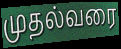
முதல்வரை